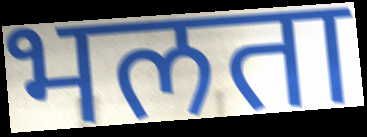
भलता